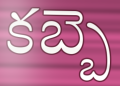
కబ్బె